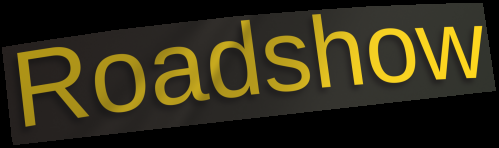
Roadshow